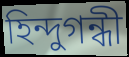
হিন্দুগন্ধী